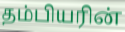
தம்பியரின்